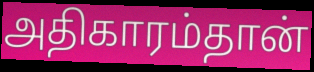
அதிகாரம்தான்